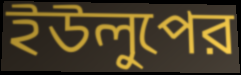
ইউলুপের